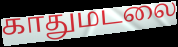
காதுமடலை